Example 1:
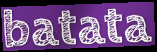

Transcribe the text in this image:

batata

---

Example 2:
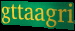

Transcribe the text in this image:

gttaagri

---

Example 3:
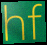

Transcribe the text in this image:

hf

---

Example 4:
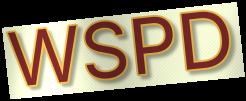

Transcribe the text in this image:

WSPD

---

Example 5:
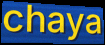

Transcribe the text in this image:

chaya